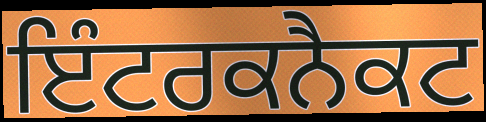
ਇੰਟਰਕਨੈਕਟ